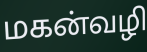
மகன்வழி